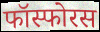
फॉस्फोरस